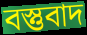
বস্তুবাদ